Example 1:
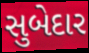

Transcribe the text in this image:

સુબેદાર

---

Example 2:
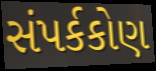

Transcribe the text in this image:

સંપર્કકોણ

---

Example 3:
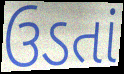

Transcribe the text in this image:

ઉડતાં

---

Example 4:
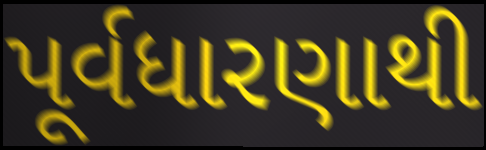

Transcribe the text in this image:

પૂર્વધારણાથી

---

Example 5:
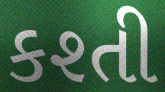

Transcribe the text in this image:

કશ્તી